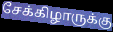
சேக்கிழாருக்கு